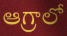
ఆగ్రాలో